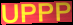
UPPP